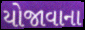
યોજાવાના